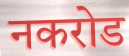
नकरोड